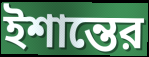
ইশান্তের